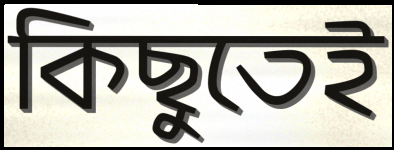
কিছুতেই